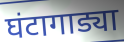
घंटागाड्या